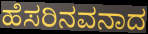
ಹೆಸರಿನವನಾದ